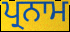
ਪ੍ਰਨਾਮ